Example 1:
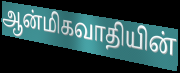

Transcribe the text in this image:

ஆன்மிகவாதியின்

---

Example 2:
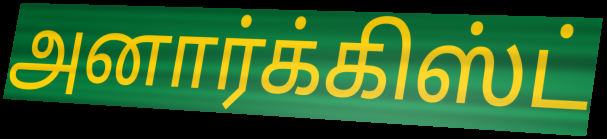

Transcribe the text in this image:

அனார்க்கிஸ்ட்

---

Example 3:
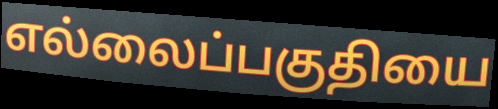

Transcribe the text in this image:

எல்லைப்பகுதியை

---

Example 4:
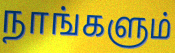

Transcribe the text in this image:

நாங்களும்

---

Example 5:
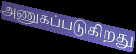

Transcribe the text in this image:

அணுகப்படுகிறது